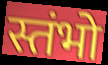
स्तंभो